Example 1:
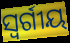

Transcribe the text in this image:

ସ୍ୱର୍ଗୀୟ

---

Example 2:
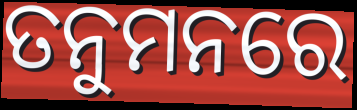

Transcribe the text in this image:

ତନୁମନରେ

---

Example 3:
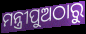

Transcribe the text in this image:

ମନ୍ତ୍ରୀପୁଅଠାରୁ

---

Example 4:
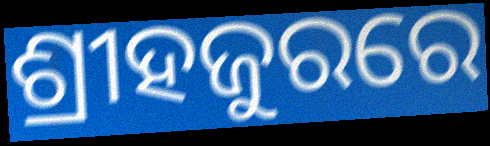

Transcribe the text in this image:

ଶ୍ରୀହଜୁରରେ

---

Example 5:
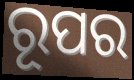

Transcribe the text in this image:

ରୂପର